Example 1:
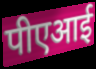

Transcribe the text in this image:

पीएआई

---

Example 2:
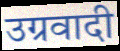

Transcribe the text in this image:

उग्रवादी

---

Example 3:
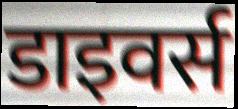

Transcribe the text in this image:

डाइवर्स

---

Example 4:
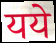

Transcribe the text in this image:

यये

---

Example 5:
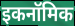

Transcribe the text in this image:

इकनॉमिक